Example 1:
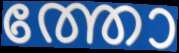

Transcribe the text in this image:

ത്തോ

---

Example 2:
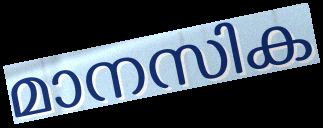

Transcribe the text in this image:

മാനസിക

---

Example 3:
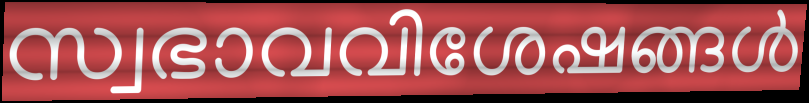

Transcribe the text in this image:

സ്വഭാവവിശേഷങ്ങൾ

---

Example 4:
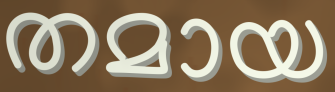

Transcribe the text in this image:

തമായ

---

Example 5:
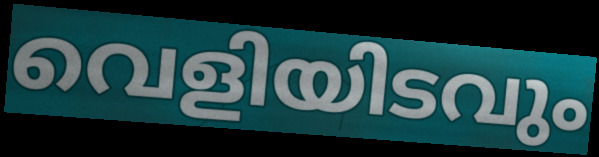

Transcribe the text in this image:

വെളിയിടവും